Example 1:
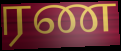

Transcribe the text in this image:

ரண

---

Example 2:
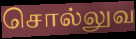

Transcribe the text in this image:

சொல்லுவ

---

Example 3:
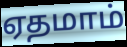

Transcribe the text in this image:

ஏதமாம்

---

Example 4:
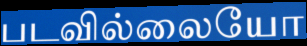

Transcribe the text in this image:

படவில்லையோ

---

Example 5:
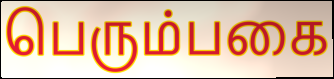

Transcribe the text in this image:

பெரும்பகை